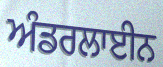
ਅੰਡਰਲਾਈਨ